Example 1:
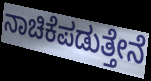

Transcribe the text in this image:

ನಾಚಿಕೆಪಡುತ್ತೇನೆ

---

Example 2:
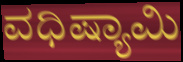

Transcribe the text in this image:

ವಧಿಷ್ಯಾಮಿ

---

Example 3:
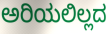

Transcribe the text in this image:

ಅರಿಯಲಿಲ್ಲದ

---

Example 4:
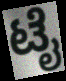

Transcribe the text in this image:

ಟೈ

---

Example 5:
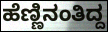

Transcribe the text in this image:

ಹೆಣ್ಣಿನಂತಿದ್ದ